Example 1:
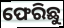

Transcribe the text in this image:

ଫେରିଛୁ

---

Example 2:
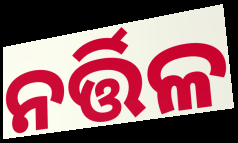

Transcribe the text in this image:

ନର୍ତ୍ତିଳ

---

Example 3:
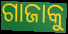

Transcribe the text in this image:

ଗାଜାକୁ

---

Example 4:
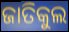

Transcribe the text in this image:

ଜାତିକୁଲ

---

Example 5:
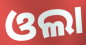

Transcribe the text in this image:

ଓଲା